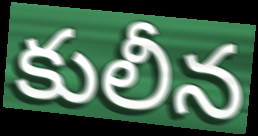
కులీన